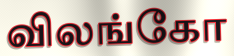
விலங்கோ